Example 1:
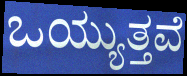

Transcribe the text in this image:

ಒಯ್ಯುತ್ತವೆ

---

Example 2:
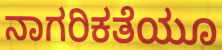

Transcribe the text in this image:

ನಾಗರಿಕತೆಯೂ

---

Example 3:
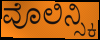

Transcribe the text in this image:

ವೊಲಿನ್ಸ್ಕಿ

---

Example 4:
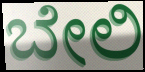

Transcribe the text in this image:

ಬೇಲಿ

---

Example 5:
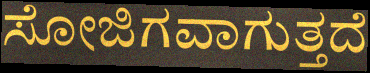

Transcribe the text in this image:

ಸೋಜಿಗವಾಗುತ್ತದೆ